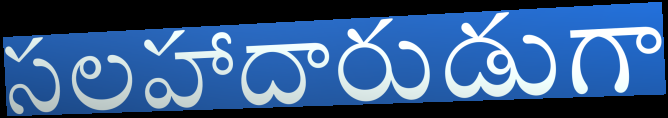
సలహాదారుడుగా